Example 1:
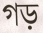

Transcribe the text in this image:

গড়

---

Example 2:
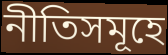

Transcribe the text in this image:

নীতিসমূহে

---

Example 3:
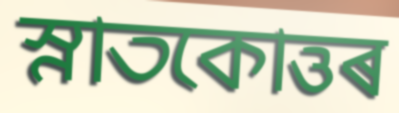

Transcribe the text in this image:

স্নাতকোত্তৰ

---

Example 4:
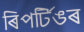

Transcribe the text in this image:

ৰিপৰ্টিঙৰ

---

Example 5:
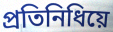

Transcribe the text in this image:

প্ৰতিনিধিয়ে